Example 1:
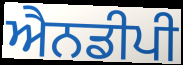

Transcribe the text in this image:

ਐਨਡੀਪੀ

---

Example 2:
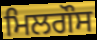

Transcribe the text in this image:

ਮਿਲਗੌਸ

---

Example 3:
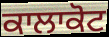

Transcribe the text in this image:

ਕਾਲਾਕੋਟ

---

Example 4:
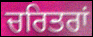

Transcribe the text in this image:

ਚਰਿਤਰਾਂ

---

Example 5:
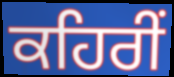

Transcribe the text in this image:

ਕਹਿਰੀਂ